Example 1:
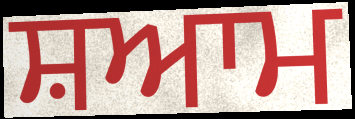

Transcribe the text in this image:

ਸ਼ਆਮ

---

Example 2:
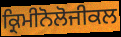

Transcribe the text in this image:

ਕ੍ਰਿਮੀਨੋਲੋਜੀਕਲ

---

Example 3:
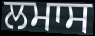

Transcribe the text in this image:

ਲਮਾਸ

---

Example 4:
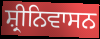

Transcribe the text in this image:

ਸ਼੍ਰੀਨਿਵਾਸਨ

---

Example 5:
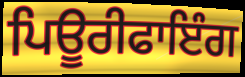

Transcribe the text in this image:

ਪਿਊਰੀਫਾਇੰਗ